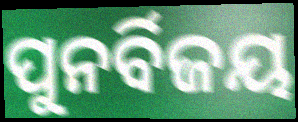
ପୁନର୍ବିଜୟ